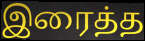
இரைத்த